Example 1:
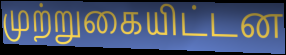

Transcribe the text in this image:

முற்றுகையிட்டன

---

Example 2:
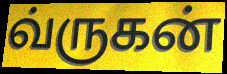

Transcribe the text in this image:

வ்ருகன்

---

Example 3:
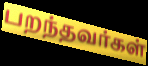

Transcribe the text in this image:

பறந்தவர்கள்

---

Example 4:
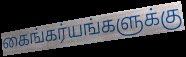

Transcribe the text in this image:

கைங்கர்யங்களுக்கு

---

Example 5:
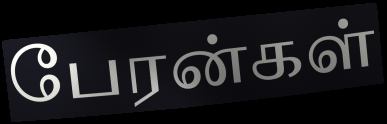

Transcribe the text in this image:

பேரன்கள்